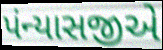
પંન્યાસજીએ